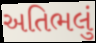
અતિભલું